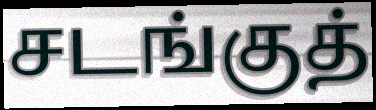
சடங்குத்